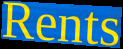
Rents